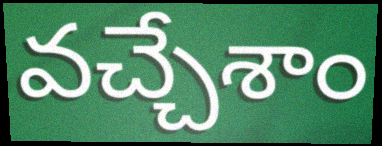
వచ్చేశాం